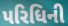
પરિધિની